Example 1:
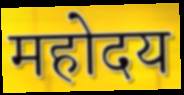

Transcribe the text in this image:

महोदय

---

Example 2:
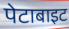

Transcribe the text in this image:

पेटाबाइट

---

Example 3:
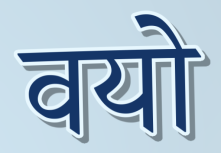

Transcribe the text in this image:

वयो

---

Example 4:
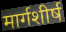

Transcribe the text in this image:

मार्गशीर्ष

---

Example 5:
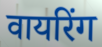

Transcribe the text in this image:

वायरिंग